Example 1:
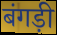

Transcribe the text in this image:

बंगड़ी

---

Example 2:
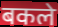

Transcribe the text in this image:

बकले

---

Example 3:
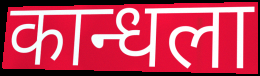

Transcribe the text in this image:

कान्धला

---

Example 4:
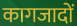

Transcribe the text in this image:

कागजादों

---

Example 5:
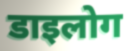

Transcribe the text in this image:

डाइलोग